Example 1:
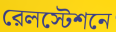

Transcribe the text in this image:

রেলস্টেশনে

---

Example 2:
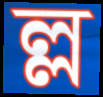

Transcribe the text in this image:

ল্ল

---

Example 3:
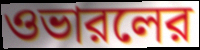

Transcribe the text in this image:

ওভারলের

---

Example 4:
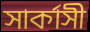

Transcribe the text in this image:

সার্কাসী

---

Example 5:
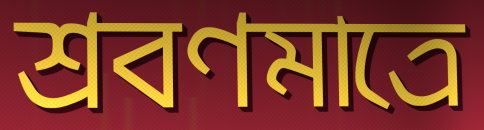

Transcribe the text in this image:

শ্রবণমাত্রে